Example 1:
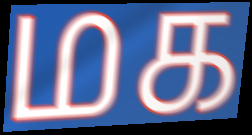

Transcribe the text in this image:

மக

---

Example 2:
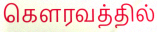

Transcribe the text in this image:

கௌரவத்தில்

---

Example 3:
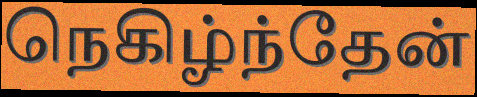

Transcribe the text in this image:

நெகிழ்ந்தேன்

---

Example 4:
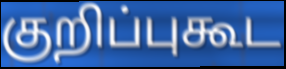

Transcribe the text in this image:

குறிப்புகூட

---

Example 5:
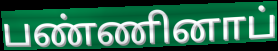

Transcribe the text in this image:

பண்ணினாப்